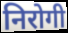
निरोगी